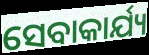
ସେବାକାର୍ଯ୍ୟ